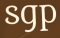
sgp